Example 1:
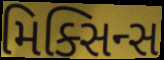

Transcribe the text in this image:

મિક્સિન્સ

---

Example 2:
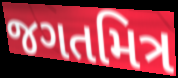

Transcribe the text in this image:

જગતમિત્ર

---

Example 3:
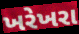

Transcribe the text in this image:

ખરેખરા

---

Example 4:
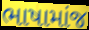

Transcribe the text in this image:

ભાષામાંજ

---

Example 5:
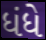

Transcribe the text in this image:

ધંધે